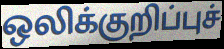
ஒலிக்குறிப்புச்